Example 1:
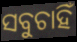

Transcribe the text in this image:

ସବୁଚାହିଁ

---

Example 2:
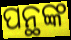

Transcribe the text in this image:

ପନ୍ଥଙ୍କ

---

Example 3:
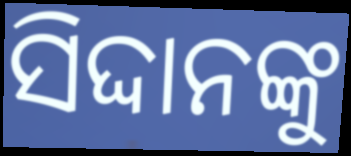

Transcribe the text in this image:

ସିଦ୍ଦାନଙ୍କୁ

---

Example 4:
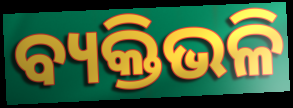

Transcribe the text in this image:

ବ୍ୟକ୍ତିଭଳି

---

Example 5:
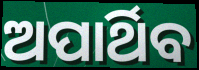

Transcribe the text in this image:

ଅପାର୍ଥିବ